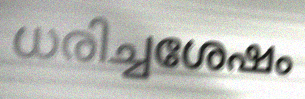
ധരിച്ചശേഷം